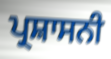
ਪ੍ਰਸ਼ਾਸਨੀ